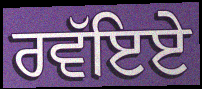
ਰਵੱਇਏ